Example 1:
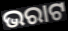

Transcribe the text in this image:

ଭରାଟ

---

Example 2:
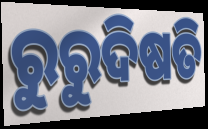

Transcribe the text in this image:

ରୁରୁଦିଷତି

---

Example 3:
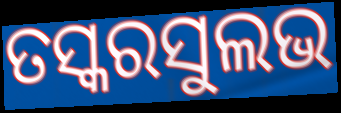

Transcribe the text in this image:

ତସ୍କରସୁଲଭ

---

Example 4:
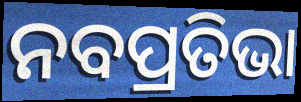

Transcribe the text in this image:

ନବପ୍ରତିଭା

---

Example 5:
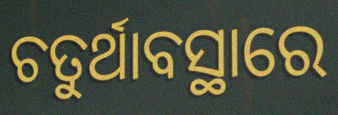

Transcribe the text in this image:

ଚତୁର୍ଥାବସ୍ଥାରେ